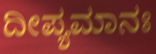
ದೀಪ್ಯಮಾನಃ